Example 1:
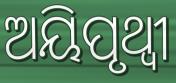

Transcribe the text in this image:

ଅୟିପୃଥ୍ୱୀ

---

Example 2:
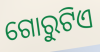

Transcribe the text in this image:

ଗୋରୁଟିଏ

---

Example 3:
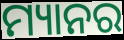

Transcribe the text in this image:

ମ୍ୟାନର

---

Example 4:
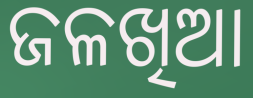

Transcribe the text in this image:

ଜଳଖିଆ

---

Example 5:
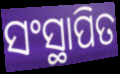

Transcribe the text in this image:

ସଂସ୍ଥାପିତ